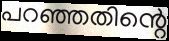
പറഞ്ഞതിന്റെ